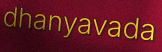
dhanyavada